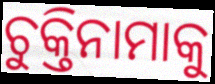
ଚୁକ୍ତିନାମାକୁ